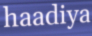
haadiya